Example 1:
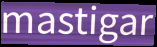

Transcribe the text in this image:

mastigar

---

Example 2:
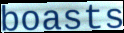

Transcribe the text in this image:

boasts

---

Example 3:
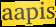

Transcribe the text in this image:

aapis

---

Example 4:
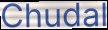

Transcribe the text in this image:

Chudal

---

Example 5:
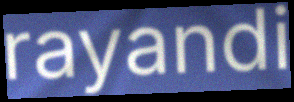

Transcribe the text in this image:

rayandi